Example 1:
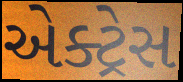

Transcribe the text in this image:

એક્ટ્રેસ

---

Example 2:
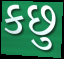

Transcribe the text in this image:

કછુ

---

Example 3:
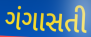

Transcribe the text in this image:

ગંગાસતી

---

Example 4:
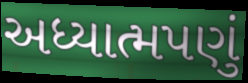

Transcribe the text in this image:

અધ્યાત્મપણું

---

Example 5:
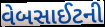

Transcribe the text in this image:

વેબસાઈટની